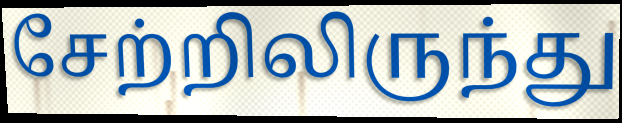
சேற்றிலிருந்து